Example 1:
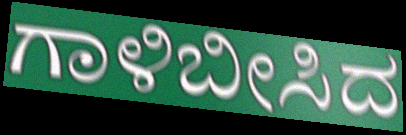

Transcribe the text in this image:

ಗಾಳಿಬೀಸಿದ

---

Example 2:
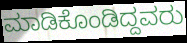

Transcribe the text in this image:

ಮಾಡಿಕೊಂಡಿದ್ದವರು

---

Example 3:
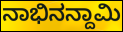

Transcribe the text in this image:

ನಾಭಿನನ್ದಾಮಿ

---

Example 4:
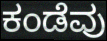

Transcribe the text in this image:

ಕಂಡೆವು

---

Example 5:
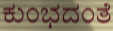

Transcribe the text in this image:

ಕುಂಭದಂತೆ